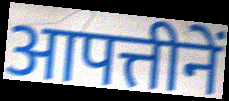
आपत्तीनें